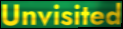
Unvisited